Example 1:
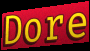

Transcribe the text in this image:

Dore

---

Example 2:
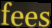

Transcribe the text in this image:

fees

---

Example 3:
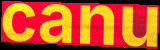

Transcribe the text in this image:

canu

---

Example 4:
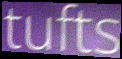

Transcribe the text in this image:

tufts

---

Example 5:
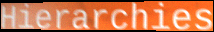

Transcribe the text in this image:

Hierarchies